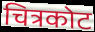
चित्रकोट